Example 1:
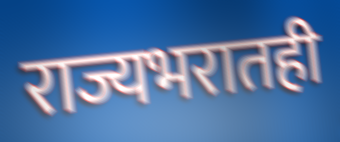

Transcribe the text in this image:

राज्यभरातही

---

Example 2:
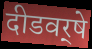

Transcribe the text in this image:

दीडवर्षे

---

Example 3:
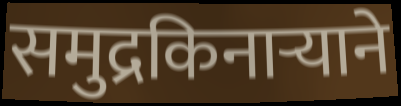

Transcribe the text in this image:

समुद्रकिनाऱ्याने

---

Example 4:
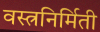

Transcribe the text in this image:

वस्त्रनिर्मिती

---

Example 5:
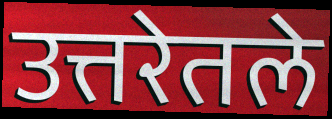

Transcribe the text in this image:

उत्तरेतले